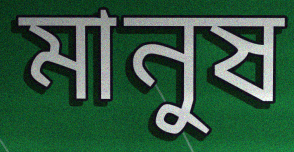
মানুষ